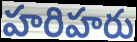
హరిహరు